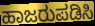
ಹಾಜರುಪಡಿಸಿ